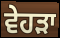
ਵੇਹੜਾ